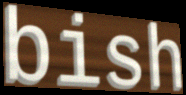
bish